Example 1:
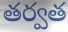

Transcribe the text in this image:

తర్వత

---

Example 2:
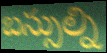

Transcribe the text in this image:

బస్సుల్ని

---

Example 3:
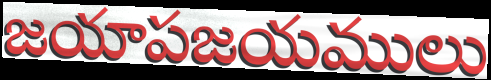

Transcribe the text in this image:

జయాపజయములు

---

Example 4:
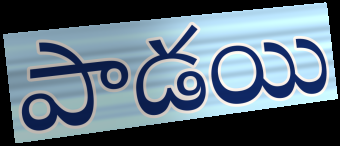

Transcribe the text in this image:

పాడయి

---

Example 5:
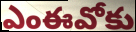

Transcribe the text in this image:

ఎంఈవోకు